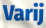
Varij